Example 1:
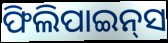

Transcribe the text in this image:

ଫିଲିପାଇନ୍‍ସ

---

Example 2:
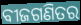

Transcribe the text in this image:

ବୀଜଗଣିତର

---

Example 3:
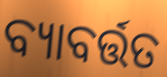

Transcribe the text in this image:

ବ୍ୟାବର୍ତ୍ତତ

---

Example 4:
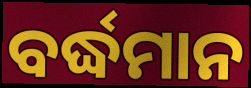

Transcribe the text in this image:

ବର୍ଦ୍ଧମାନ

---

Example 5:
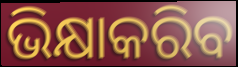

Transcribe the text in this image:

ଭିକ୍ଷାକରିବ